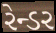
રેન્ડર